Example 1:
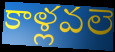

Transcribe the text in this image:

కాళ్లవలె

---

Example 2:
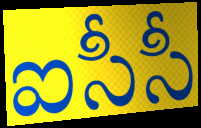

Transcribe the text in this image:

ఐసీసీ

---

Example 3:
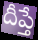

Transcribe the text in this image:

దీప్తే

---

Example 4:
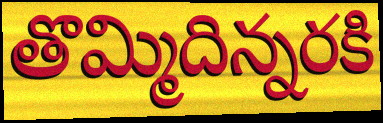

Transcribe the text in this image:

తొమ్మిదిన్నరకి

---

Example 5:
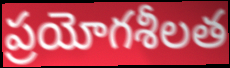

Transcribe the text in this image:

ప్రయోగశీలత